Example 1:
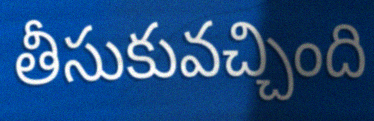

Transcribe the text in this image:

తీసుకువచ్చింది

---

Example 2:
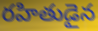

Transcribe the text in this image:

రహితుడైన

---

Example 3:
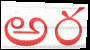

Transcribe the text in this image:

అర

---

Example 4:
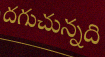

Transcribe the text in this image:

దగుచున్నది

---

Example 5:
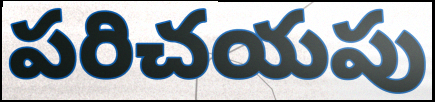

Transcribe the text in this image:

పరిచయపు